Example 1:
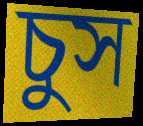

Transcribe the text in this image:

চুস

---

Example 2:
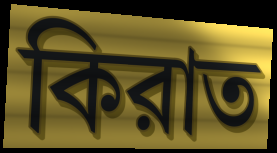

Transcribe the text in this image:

কিরাত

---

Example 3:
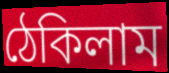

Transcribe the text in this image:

ঠেকিলাম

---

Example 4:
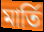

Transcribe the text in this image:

মার্তি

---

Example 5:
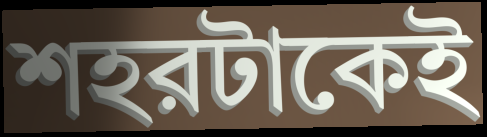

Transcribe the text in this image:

শহরটাকেই